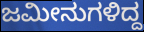
ಜಮೀನುಗಳಿದ್ದ